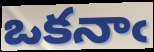
ఒకనాఁ